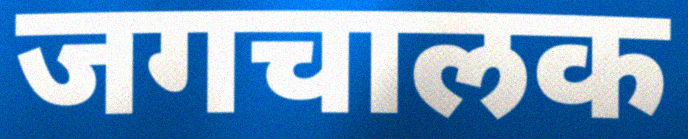
जगचालक